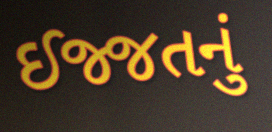
ઈજ્જતનું